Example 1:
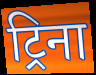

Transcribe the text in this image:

ट्रिना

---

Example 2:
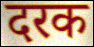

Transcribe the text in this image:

दरक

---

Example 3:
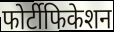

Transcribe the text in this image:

फोर्टीफिकेशन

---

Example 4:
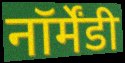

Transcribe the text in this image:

नॉर्मेंडी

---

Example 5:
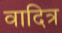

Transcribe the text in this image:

वादित्र